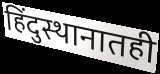
हिंदुस्थानातही